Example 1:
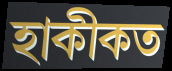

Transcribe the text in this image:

হাকীকত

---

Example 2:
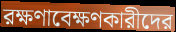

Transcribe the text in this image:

রক্ষণাবেক্ষণকারীদের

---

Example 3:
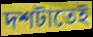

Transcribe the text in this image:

দশটাতেই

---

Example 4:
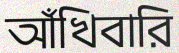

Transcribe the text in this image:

আঁখিবারি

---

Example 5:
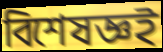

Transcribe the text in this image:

বিশেষজ্ঞই